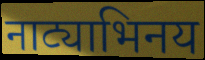
नाट्याभिनय